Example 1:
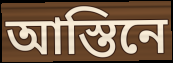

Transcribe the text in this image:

আস্তিনে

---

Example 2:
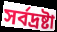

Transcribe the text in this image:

সর্বদ্রষ্টা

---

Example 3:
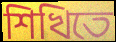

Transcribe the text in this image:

শিখিতে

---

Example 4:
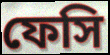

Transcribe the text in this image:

ফেসি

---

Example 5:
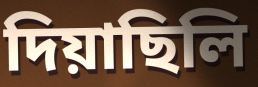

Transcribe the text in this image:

দিয়াছিলি